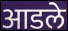
आडले